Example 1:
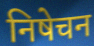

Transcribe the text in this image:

निषेचन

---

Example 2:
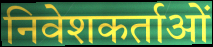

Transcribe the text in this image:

निवेशकर्ताओं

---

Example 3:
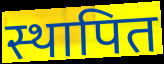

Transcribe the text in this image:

स्थापित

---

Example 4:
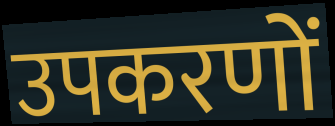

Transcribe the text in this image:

उपकरणों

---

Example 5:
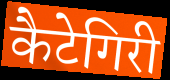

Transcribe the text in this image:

कैटेगिरी